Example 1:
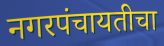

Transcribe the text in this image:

नगरपंचायतीचा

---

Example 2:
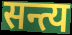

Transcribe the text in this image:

सन्त्य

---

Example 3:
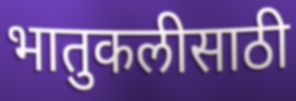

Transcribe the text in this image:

भातुकलीसाठी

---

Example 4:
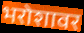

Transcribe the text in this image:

भरोशावर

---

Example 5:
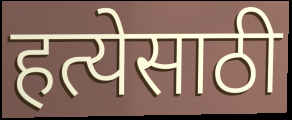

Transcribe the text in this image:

हत्येसाठी